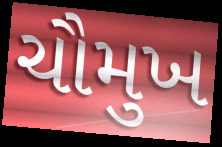
ચૌમુખ